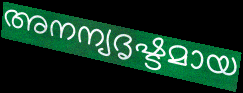
അനന്യദൃഷ്ടമായ